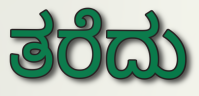
ತರೆದು